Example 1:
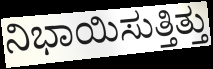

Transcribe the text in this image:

ನಿಭಾಯಿಸುತ್ತಿತ್ತು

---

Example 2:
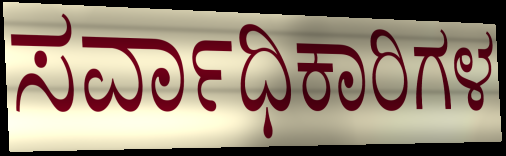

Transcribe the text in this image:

ಸರ್ವಾಧಿಕಾರಿಗಳ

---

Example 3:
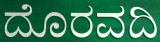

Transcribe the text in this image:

ದೊರವದಿ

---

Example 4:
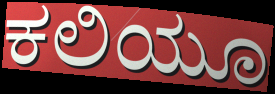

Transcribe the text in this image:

ಕಲಿಯೂ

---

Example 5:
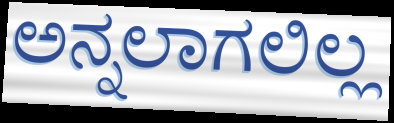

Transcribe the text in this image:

ಅನ್ನಲಾಗಲಿಲ್ಲ